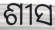
ଶୀସ